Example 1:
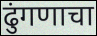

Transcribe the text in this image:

ढुंगणाचा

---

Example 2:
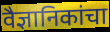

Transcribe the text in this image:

वैज्ञानिकांचा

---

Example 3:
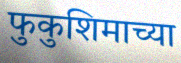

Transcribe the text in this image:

फुकुशिमाच्या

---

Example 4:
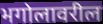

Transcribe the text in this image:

भगोलावरील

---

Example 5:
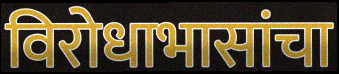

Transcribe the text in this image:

विरोधाभासांचा